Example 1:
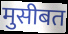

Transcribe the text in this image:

मुसीबत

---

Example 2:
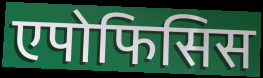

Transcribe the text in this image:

एपोफिसिस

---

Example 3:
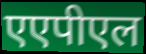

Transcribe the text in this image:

एएपीएल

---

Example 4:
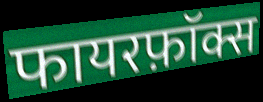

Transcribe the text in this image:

फायरफ़ॉक्स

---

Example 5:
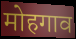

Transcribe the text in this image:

मोहगाव